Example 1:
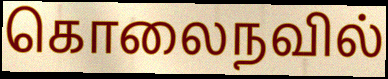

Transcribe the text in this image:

கொலைநவில்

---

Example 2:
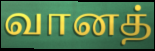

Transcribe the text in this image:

வானத்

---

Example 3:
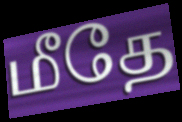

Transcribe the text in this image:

மீதே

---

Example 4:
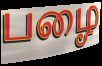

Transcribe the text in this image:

பழை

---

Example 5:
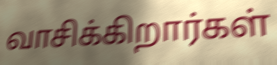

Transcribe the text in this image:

வாசிக்கிறார்கள்